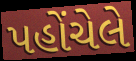
પહોંચેલે